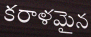
కరాళమైన